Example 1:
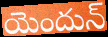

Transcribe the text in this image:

యెందున్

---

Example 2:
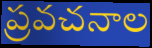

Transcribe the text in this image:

ప్రవచనాల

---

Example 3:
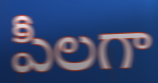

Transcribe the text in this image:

పీలగా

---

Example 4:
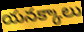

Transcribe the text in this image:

యనక్కాలు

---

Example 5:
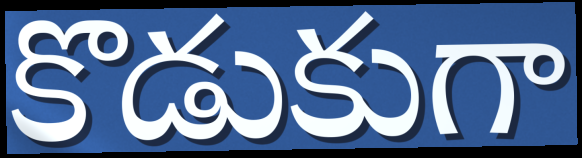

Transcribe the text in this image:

కొడుకుగా